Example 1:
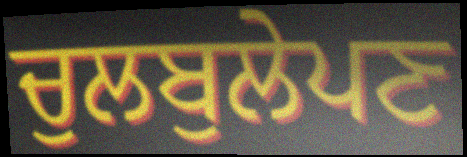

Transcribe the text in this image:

ਚੁਲਬੁਲੇਪਣ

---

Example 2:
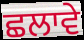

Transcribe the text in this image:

ਛਲਾਵੇ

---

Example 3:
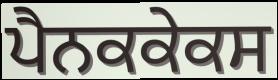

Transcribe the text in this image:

ਪੈਨਕਕੇਕਸ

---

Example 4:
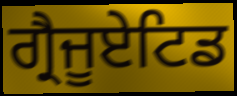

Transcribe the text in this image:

ਗ੍ਰੈਜੂਏਟਿਡ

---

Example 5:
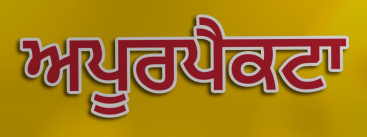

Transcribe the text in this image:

ਅਪੂਰਪੈਕਟਾ